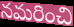
నమరించి